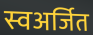
स्वअर्जित